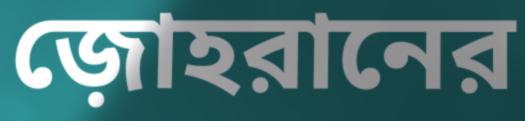
জ়োহরানের